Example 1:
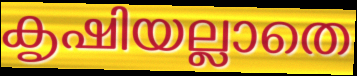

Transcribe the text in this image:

കൃഷിയല്ലാതെ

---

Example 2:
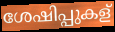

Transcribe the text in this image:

ശേഷിപ്പുകള്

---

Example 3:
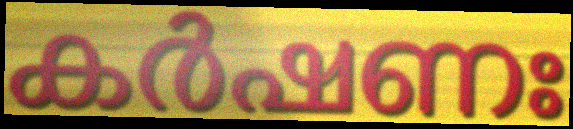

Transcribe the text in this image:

കർഷണഃ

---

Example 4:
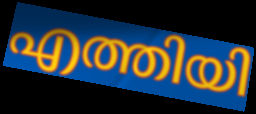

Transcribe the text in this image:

എത്തിയി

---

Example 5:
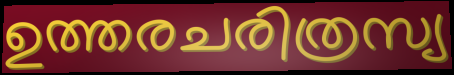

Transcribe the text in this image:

ഉത്തരചരിത്രസ്യ